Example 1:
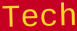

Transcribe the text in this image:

Tech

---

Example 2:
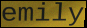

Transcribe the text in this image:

emily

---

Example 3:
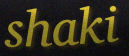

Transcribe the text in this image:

shaki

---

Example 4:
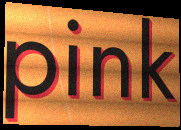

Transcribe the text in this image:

pink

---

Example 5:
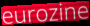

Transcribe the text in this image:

eurozine